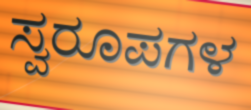
ಸ್ವರೂಪಗಳ